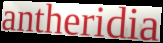
antheridia